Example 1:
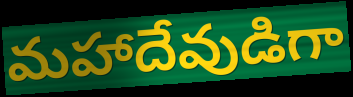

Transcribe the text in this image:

మహాదేవుడిగా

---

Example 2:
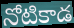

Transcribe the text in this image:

నోటికాడ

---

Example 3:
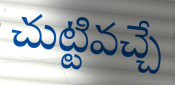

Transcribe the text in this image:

చుట్టివచ్చే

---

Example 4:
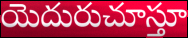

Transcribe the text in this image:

యెదురుచూస్తూ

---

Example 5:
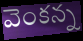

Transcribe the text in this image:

వెంకన్న